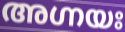
അഗ്നയഃ